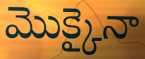
మొక్కైనా